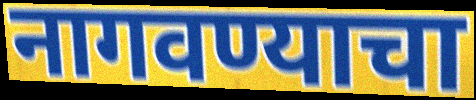
नागवण्याचा